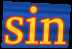
sin